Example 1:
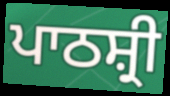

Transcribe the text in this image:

ਪਾਠਸ਼੍ਰੀ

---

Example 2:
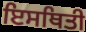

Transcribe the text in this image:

ਇਸਥਿਤੀ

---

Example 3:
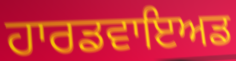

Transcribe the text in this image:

ਹਾਰਡਵਾਇਅਡ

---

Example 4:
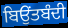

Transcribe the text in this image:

ਬਿਉਂਤਬੰਦੀ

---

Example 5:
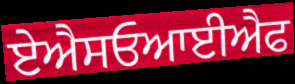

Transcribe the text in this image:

ਏਐਸਓਆਈਐਫ